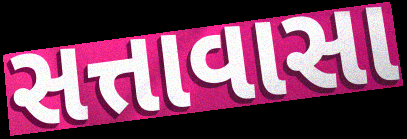
સત્તાવાસા